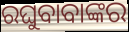
ରଘୁବାବାଙ୍କର